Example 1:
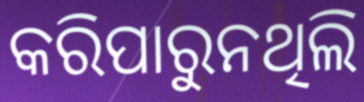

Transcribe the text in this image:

କରିପାରୁନଥିଲି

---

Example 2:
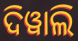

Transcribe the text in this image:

ଦିୱାଲି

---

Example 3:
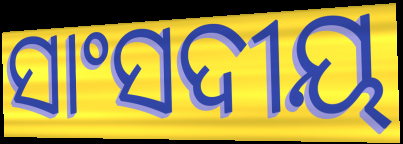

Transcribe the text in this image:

ସାଂସଦୀୟ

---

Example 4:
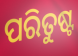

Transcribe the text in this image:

ପରିତୁଷ୍ଟ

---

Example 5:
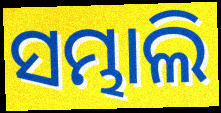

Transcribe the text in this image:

ସମ୍ଭାଲି